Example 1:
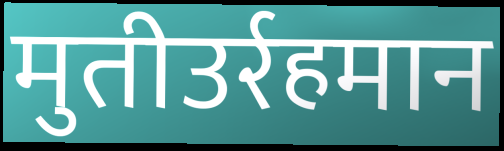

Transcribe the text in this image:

मुतीउर्रहमान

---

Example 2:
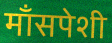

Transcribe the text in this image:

माँसपेशी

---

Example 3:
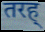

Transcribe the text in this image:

तरह्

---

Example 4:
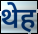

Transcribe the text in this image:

थेह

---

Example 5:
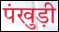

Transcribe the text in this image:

पंखुड़ी